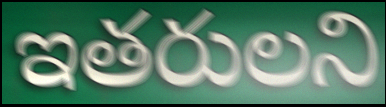
ఇతరులని